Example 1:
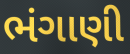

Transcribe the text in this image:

ભંગાણી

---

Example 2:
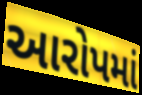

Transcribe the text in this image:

આરોપમાં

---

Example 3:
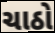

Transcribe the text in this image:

ચાઠો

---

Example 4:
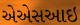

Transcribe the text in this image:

એએસઆઇ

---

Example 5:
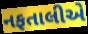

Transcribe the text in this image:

નફતાલીએ